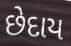
છેદાય